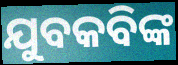
ଯୁବକବିଙ୍କ